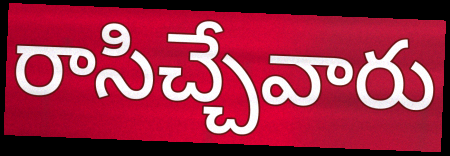
రాసిచ్చేవారు